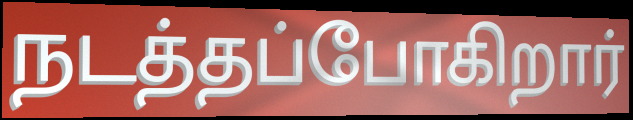
நடத்தப்போகிறார்